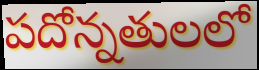
పదోన్నతులలో